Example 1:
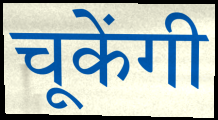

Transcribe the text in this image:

चूकेंगी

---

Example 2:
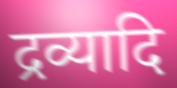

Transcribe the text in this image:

द्रव्यादि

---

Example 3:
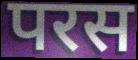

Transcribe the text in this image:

परस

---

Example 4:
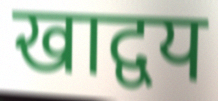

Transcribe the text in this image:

खाद्वय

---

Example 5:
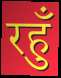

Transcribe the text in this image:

रहुँ